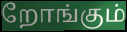
றோங்கும்